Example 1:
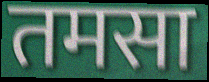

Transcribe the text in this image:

तमसा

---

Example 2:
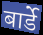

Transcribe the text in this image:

बार्डे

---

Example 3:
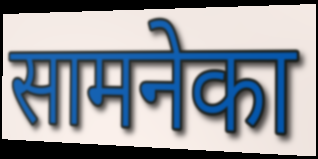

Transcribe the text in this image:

सामनेका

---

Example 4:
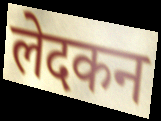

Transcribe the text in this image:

लेदकन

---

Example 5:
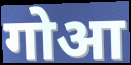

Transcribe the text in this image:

गोआ